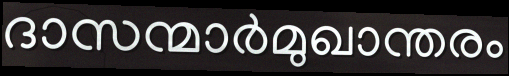
ദാസന്മാർമുഖാന്തരം